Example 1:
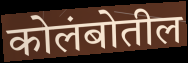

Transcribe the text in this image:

कोलंबोतील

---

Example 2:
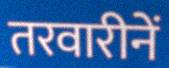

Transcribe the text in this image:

तरवारीनें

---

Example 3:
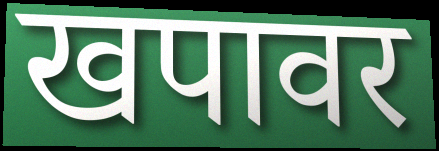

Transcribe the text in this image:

खपावर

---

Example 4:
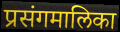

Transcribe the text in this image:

प्रसंगमालिका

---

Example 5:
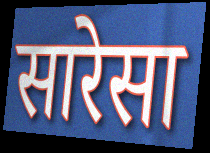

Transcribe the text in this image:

सारेसा